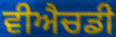
ਵੀਐਚਡੀ